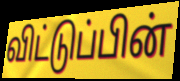
விட்டுப்பின்